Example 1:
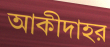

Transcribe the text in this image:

আকীদাহর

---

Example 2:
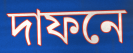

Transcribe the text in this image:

দাফনে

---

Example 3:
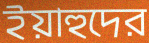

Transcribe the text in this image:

ইয়াহুদের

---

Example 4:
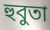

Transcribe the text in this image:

হুবুতা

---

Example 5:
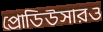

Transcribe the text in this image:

প্রোডিউসারও